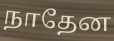
நாதேன